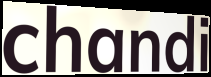
chandi